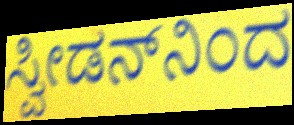
ಸ್ವೀಡನ್‌ನಿಂದ